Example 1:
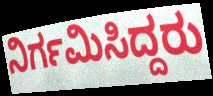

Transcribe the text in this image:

ನಿರ್ಗಮಿಸಿದ್ದರು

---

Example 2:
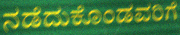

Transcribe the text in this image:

ನಡೆದುಕೊಂಡವರಿಗೆ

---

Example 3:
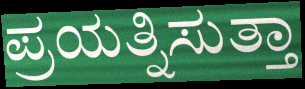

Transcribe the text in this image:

ಪ್ರಯತ್ನಿಸುತ್ತಾ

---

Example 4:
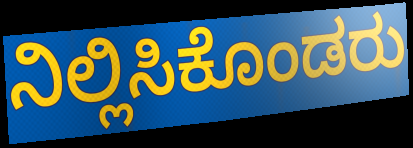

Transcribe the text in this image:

ನಿಲ್ಲಿಸಿಕೊಂಡರು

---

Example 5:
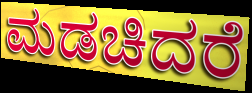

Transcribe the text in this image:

ಮಡಚಿದರೆ